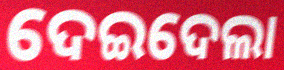
ଦେଇଦେଲା